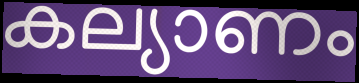
കല്യാണം